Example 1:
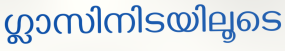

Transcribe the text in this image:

ഗ്ലാസിനിടയിലൂടെ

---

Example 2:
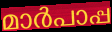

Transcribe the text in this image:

മാർപാപ്പ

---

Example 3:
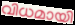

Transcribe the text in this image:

വിധമായി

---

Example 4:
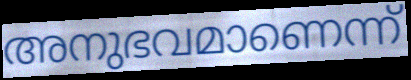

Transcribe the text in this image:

അനുഭവമാണെന്ന്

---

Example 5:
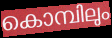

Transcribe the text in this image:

കൊമ്പിലും